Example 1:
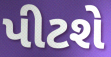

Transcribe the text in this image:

પીટશે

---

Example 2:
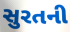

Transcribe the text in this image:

સુરતની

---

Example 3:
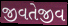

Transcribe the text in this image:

જીવતેજીવ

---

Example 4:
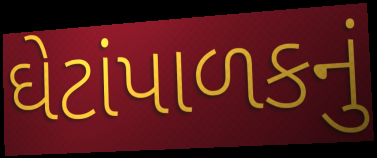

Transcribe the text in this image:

ઘેટાંપાળકનું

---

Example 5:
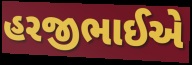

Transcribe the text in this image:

હરજીભાઈએ